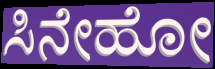
ಸಿನೇಹೋ